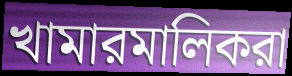
খামারমালিকরা